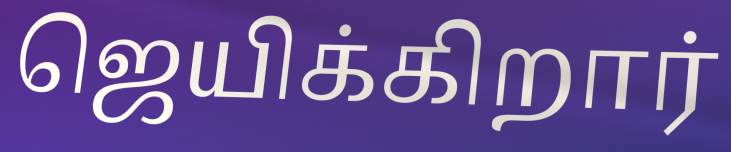
ஜெயிக்கிறார்